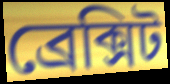
ব্রেক্সিট